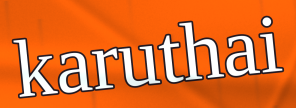
karuthai